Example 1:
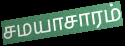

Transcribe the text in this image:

சமயாசாரம்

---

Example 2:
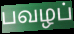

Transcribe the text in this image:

பவழப்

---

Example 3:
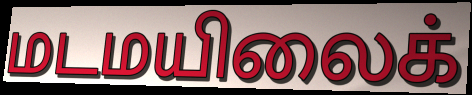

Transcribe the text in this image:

மடமயிலைக்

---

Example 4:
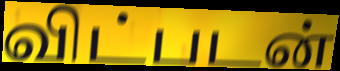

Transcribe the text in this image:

விட்படன்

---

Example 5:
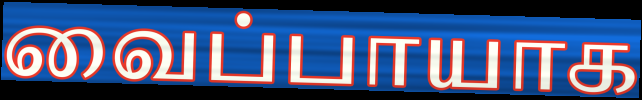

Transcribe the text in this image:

வைப்பாயாக